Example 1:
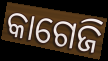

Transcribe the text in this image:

କାଗେଜି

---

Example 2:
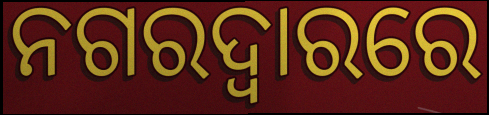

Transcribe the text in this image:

ନଗରଦ୍ୱାରରେ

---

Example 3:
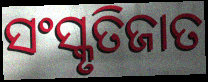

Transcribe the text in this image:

ସଂସ୍କୃତିଜାତ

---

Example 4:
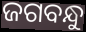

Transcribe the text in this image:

ଜଗବନ୍ଧୁ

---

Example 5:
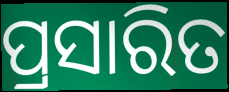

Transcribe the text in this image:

ପ୍ରସାରିତ